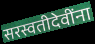
सरस्वतीदेवींना